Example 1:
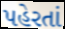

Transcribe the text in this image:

પહેરતાં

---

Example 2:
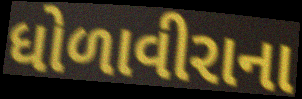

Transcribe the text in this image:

ધોળાવીરાના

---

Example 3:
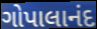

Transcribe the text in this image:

ગોપાલાનંદ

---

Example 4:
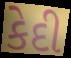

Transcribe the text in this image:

કેદી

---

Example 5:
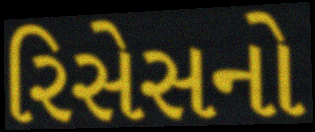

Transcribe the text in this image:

રિસેસનો